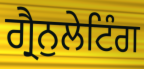
ਗ੍ਰੈਨੁਲੇਟਿੰਗ